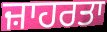
ਜ਼ਾਹਰਤਾ